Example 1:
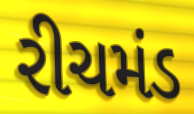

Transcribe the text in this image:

રીચમંડ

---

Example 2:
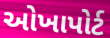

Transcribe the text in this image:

ઓખાપોર્ટ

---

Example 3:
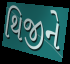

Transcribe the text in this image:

થિજીને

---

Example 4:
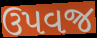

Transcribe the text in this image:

ઉપવજ્ર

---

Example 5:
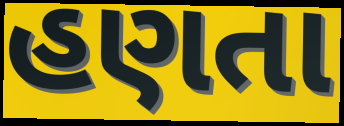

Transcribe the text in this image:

હણતા